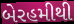
બેરહમીથી